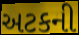
અટકની